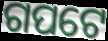
ଗପଟେ